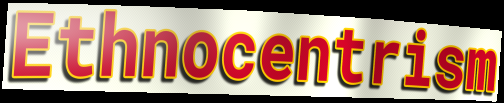
Ethnocentrism